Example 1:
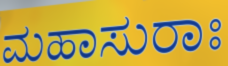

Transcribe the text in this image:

ಮಹಾಸುರಾಃ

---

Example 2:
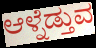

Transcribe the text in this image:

ಆಳ್ನೆಡ್ತುವ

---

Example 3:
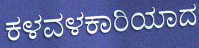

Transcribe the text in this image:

ಕಳವಳಕಾರಿಯಾದ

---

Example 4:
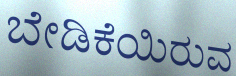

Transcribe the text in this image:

ಬೇಡಿಕೆಯಿರುವ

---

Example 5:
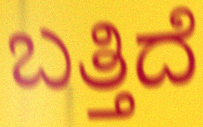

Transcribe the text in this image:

ಬತ್ತಿದೆ